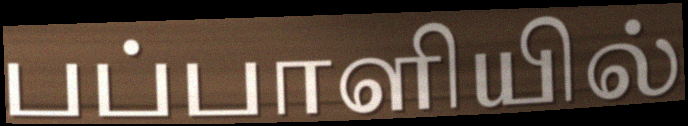
பப்பாளியில்